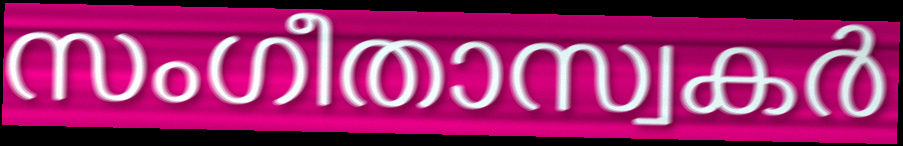
സംഗീതാസ്വകർ